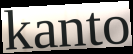
kanto